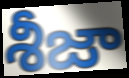
శీజా